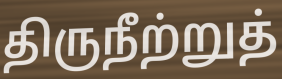
திருநீற்றுத்